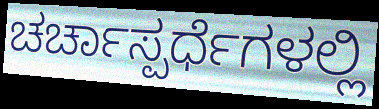
ಚರ್ಚಾಸ್ಪರ್ಧೆಗಳಲ್ಲಿ